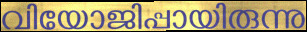
വിയോജിപ്പായിരുന്നു